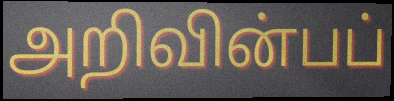
அறிவின்பப்